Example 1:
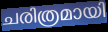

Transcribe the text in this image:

ചരിത്രമായി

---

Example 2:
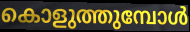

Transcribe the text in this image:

കൊളുത്തുമ്പോൾ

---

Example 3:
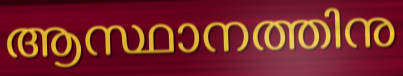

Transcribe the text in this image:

ആസ്ഥാനത്തിനു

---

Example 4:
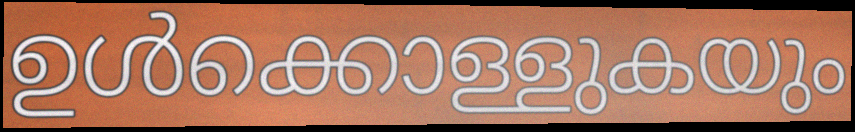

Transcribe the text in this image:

ഉൾക്കൊള്ളുകയും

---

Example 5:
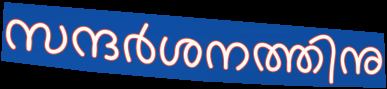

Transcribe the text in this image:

സന്ദർശനത്തിനു